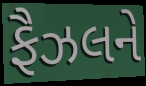
ફૈઝલને